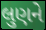
લુણને